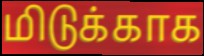
மிடுக்காக